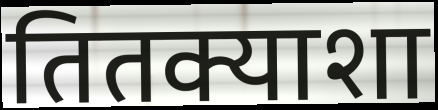
तितक्याशा